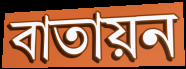
বাতায়ন